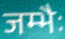
जम्भैः